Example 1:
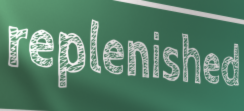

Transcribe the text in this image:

replenished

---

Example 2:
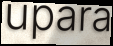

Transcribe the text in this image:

upara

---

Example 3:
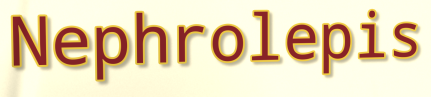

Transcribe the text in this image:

Nephrolepis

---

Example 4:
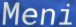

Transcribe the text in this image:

Meni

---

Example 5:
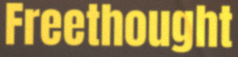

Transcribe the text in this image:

Freethought